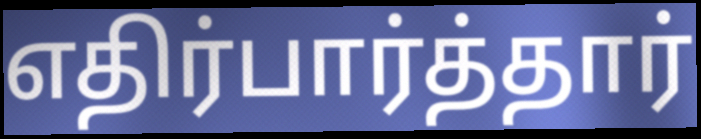
எதிர்பார்த்தார்